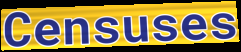
Censuses